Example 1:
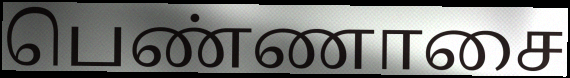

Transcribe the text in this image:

பெண்ணாசை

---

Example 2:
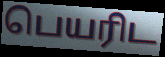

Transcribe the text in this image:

பெயரிட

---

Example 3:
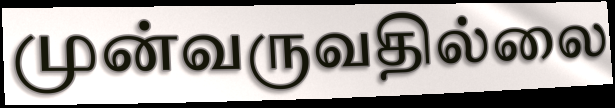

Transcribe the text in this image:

முன்வருவதில்லை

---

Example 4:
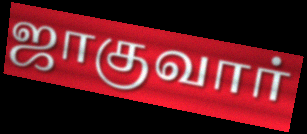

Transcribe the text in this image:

ஜாகுவார்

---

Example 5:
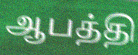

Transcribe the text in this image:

ஆபத்தி